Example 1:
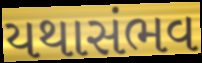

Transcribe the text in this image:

યથાસંભવ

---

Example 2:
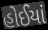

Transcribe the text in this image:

હોઈયાં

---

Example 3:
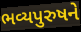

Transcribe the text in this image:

ભવ્યપુરુષને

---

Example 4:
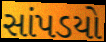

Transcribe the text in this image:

સાંપડયો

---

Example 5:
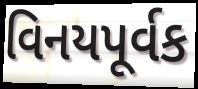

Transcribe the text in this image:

વિનયપૂર્વક